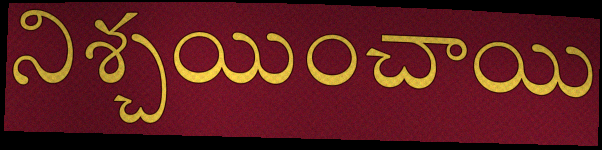
నిశ్చయించాయి